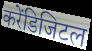
करेंडिजिटल